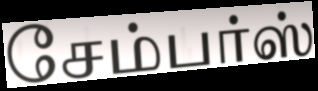
சேம்பர்ஸ்